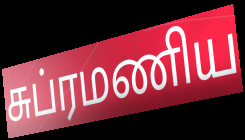
சுப்ரமணிய